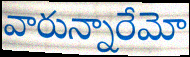
వారున్నారేమో